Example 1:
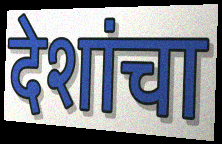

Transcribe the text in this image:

देशांचा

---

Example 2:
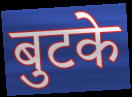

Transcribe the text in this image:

बुटके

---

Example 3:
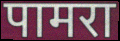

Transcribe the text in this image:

पामरा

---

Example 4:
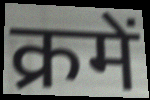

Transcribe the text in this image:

क्रमें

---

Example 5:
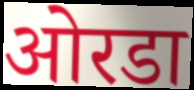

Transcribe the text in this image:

ओरडा